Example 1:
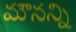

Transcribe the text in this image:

మౌనన్ని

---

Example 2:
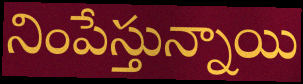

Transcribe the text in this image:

నింపేస్తున్నాయి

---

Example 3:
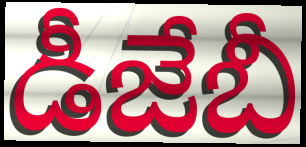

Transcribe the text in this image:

డీజేబీ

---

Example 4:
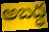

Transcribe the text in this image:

అబద్ధ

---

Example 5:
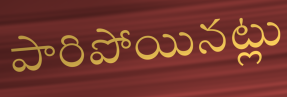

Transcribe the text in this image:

పారిపోయినట్లు